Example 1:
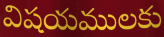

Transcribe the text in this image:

విషయములకు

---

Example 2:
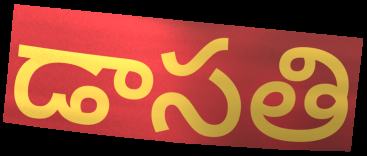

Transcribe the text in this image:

డాసతి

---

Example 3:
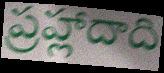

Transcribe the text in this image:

ప్రహ్లాదాది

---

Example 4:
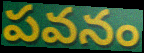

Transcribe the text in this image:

పవనం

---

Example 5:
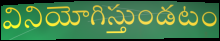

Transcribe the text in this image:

వినియోగిస్తుండటం